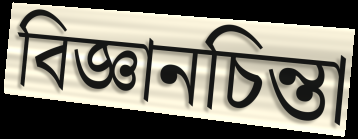
বিজ্ঞানচিন্তা